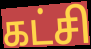
கட்சி